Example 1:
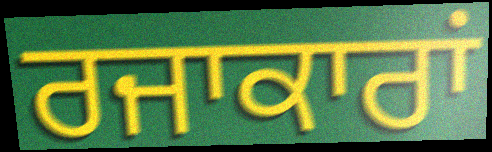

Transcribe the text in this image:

ਰਜਾਕਾਰਾਂ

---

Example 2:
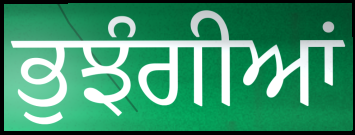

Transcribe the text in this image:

ਭੁਝੰਗੀਆਂ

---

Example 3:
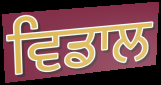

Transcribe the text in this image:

ਵਿਡਾਲ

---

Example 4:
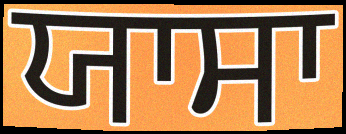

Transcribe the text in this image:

ਯਾਸਾ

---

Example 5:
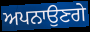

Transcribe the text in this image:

ਅਪਨਾਉਣਗੇ